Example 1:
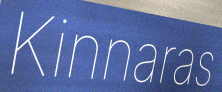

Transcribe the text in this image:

Kinnaras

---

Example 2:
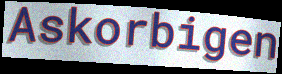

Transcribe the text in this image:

Askorbigen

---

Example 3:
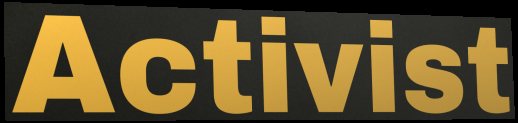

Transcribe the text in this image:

Activist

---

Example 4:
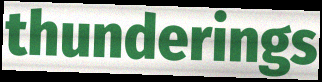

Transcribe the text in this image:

thunderings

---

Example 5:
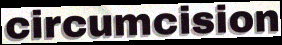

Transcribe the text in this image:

circumcision